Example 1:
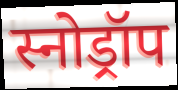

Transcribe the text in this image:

स्नोड्रॉप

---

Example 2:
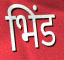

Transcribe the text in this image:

भिंड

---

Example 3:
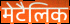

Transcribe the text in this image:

मेटैलिक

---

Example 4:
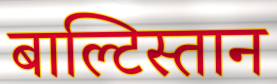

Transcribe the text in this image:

बाल्टिस्तान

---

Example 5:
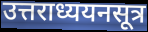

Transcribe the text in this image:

उत्तराध्ययनसूत्र